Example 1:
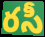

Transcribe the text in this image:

రసీ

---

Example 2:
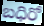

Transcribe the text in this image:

బధిరో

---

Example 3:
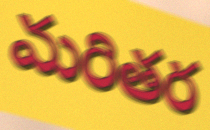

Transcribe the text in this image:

మరితర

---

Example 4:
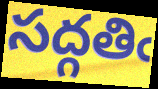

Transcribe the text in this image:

సద్గతిఁ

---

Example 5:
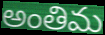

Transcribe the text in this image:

అంతిమ